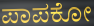
ಪಾಪಕೋ